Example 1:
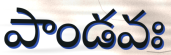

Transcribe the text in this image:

పాండవః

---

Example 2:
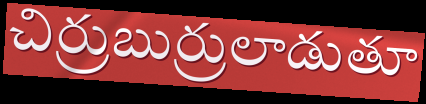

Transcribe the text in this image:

చిర్రుబుర్రులాడుతూ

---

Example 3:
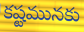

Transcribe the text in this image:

కష్టమునకు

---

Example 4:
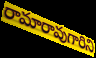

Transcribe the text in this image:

రామారావుగారిని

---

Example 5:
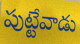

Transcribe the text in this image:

పుట్టేవాడు